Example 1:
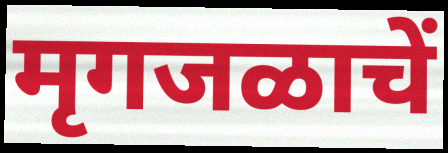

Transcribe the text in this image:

मृगजळाचें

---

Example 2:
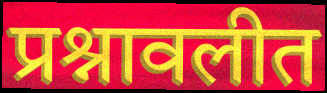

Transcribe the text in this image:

प्रश्नावलीत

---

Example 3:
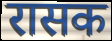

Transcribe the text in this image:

रासक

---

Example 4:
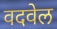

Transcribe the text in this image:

वदवेल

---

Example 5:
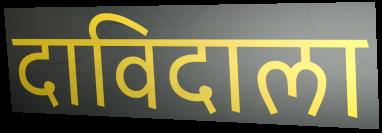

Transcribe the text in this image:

दाविदाला